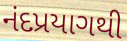
નંદપ્રયાગથી